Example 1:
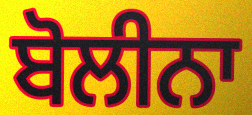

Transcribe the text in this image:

ਬੋਲੀਨਾ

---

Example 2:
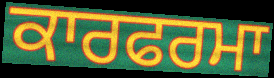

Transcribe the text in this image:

ਕਾਰਫਰਮਾ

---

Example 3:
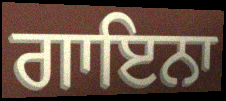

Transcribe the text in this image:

ਗਾਇਨਾ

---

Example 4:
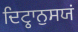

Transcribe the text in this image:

ਦਿਟ੍ਠਾਨੁਸਯਂ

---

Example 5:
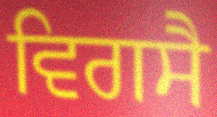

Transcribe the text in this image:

ਵਿਗਸੈ